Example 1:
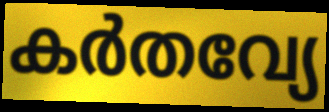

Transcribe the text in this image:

കർതവ്യേ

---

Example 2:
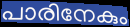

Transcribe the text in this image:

പാരിനേകും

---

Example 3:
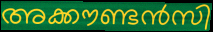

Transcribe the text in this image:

അക്കൗണ്ടൻസി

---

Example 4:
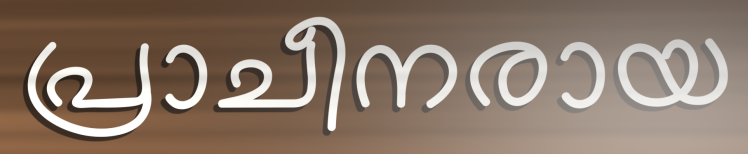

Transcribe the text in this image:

പ്രാചീനരായ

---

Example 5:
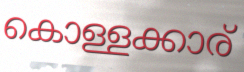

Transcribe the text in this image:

കൊള്ളക്കാര്